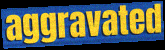
aggravated